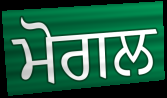
ਮੋਗਲ